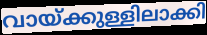
വായ്ക്കുള്ളിലാക്കി